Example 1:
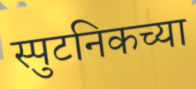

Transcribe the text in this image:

स्पुटनिकच्या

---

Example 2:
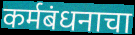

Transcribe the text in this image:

कर्मबंधनाचा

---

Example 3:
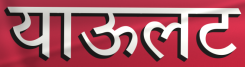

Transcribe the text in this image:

याऊलट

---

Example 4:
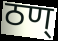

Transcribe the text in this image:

ठण्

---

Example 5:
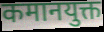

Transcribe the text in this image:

कमानयुक्त